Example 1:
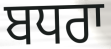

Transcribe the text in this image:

ਬਧਰਾ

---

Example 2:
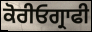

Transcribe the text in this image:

ਕੋਰੀਓਗ੍ਰਾਫੀ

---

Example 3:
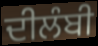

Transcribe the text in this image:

ਦੀਲੰਬੀ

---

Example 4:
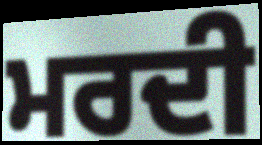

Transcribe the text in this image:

ਮਰਦੀ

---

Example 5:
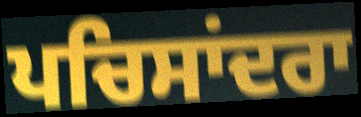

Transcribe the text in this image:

ਪਚਿਸਾਂਦਰਾ